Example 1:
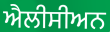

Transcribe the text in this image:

ਐਲੀਸੀਅਨ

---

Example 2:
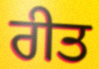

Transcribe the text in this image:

ਰੀਤ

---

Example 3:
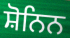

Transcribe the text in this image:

ਸ਼ੋਨਿਨ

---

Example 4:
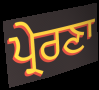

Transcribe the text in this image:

ਪ੍ਰੇਰਣਾ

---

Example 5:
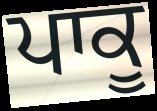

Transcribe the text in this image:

ਪਾਕੂ